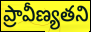
ప్రావీణ్యతని